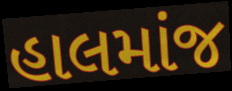
હાલમાંજ